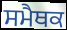
ਸਮੈਥਕ